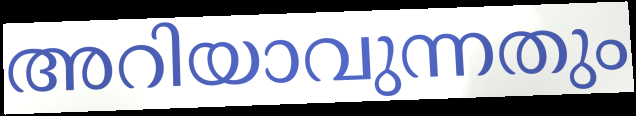
അറിയാവുന്നതും